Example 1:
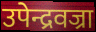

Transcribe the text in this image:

उपेन्द्रवज्रा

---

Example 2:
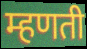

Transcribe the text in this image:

म्हणती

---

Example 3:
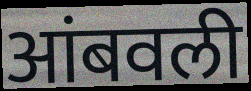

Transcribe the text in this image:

आंबवली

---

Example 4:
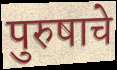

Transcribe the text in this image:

पुरुषाचे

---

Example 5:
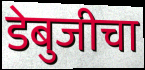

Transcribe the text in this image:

डेबुजीचा